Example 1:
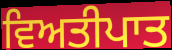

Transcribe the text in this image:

ਵਿਅਤੀਪਾਤ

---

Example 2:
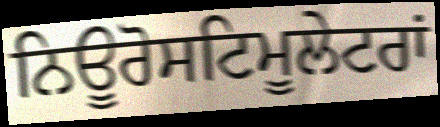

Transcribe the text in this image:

ਨਿਊਰੋਸਟਿਮੂਲੇਟਰਾਂ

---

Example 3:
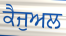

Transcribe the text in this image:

ਕੈਜੁਅਲ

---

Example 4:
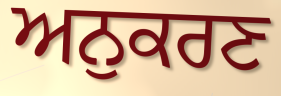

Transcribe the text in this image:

ਅਨੁਕਰਣ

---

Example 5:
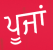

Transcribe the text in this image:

ਪੂਜਾਂ